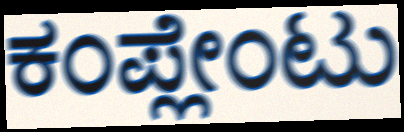
ಕಂಪ್ಲೇಂಟು